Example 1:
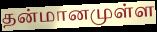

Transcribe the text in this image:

தன்மானமுள்ள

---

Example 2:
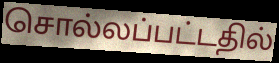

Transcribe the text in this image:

சொல்லப்பட்டதில்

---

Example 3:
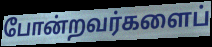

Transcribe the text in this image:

போன்றவர்களைப்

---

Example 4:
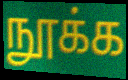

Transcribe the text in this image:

நூக்க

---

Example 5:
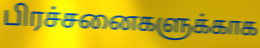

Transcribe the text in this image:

பிரச்சனைகளுக்காக